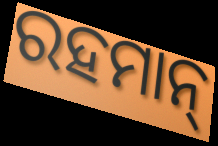
ରହମାନ୍